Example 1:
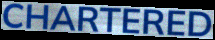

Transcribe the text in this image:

CHARTERED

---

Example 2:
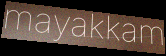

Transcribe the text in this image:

mayakkam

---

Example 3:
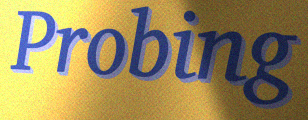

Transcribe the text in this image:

Probing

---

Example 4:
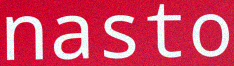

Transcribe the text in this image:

nasto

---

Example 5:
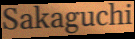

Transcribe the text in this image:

Sakaguchi